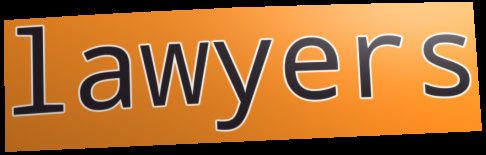
lawyers